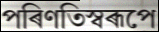
পৰিণতিস্বৰূপে